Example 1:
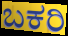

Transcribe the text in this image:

ಬಕರಿ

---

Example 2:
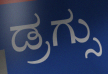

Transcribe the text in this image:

ಡ್ರಗ್ಸು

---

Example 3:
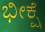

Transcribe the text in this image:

ಭೀಕ್ಷೆ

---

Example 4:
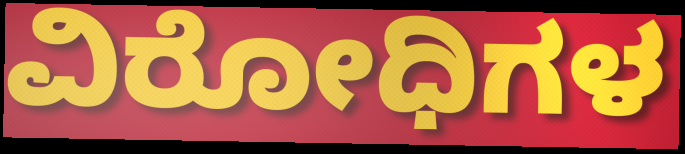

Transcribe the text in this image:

ವಿರೋಧಿಗಳ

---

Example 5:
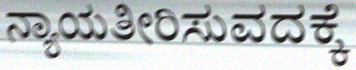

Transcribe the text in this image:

ನ್ಯಾಯತೀರಿಸುವದಕ್ಕೆ